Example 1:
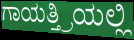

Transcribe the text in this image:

ಗಾಯತ್ತ್ರಿಯಲ್ಲಿ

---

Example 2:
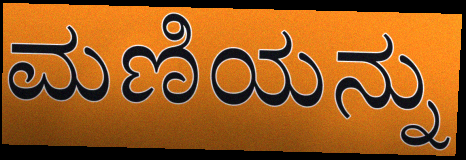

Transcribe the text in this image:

ಮಣಿಯನ್ನು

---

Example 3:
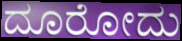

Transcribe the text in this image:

ದೂರೋದು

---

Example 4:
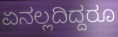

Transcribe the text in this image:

ಏನಲ್ಲದಿದ್ದರೂ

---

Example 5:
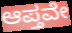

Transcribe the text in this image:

ಆಪ್ತವೇ